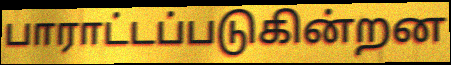
பாராட்டப்படுகின்றன